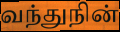
வந்துநின்